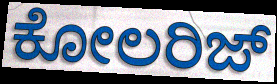
ಕೋಲರಿಜ್